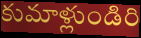
కుమాళ్లుండిరి